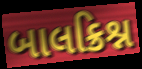
બાલક્રિશ્ન